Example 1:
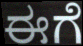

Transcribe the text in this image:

ಈಗೆ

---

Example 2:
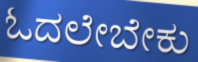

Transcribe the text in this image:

ಓದಲೇಬೇಕು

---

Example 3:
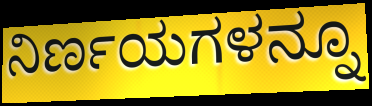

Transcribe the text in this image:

ನಿರ್ಣಯಗಳನ್ನೂ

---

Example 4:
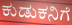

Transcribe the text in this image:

ಕುಡುಕನಿಗೆ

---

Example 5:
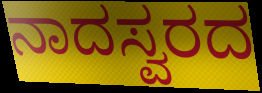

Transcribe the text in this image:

ನಾದಸ್ವರದ